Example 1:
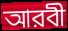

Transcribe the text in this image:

আরবী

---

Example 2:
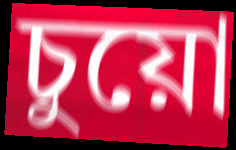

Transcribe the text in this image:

চুয়ো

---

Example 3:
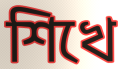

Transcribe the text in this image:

শিখে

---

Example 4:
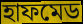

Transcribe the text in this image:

হাফমেড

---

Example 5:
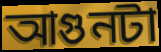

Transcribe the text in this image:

আগুনটা